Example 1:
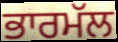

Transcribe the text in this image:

ਭਾਰਮੱਲ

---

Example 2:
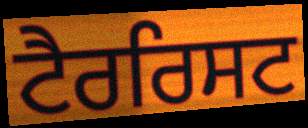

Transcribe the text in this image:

ਟੈਰਰਿਸਟ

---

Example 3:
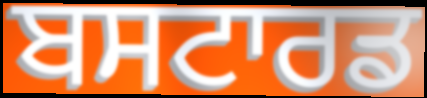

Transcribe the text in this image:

ਬਸਟਾਰਡ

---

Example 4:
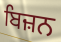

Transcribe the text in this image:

ਬਿਜ਼ਨ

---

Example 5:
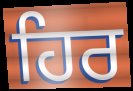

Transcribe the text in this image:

ਹਿਰ